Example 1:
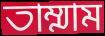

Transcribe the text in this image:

তাম্মাম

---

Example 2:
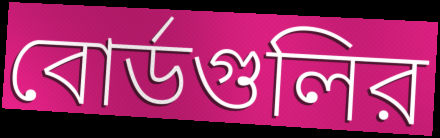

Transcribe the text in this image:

বোর্ডগুলির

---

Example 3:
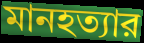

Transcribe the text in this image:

মানহত্যার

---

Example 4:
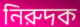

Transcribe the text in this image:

নিরুদক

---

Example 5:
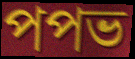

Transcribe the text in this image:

পপভ